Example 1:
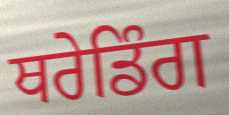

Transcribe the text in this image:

ਥਰੇਡਿੰਗ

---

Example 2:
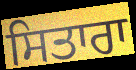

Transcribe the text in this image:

ਸਿਤਾਰਾ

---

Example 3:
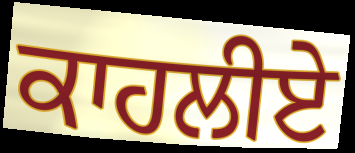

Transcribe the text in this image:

ਕਾਹਲੀਏ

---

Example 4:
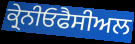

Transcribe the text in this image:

ਕ੍ਰੇਨੀਓਫੈਸੀਅਲ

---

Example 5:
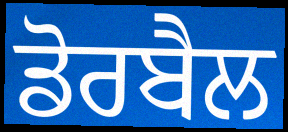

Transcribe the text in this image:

ਡੋਰਬੈਲ